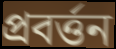
প্ৰবৰ্ত্তন